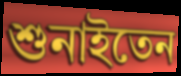
শুনাইতেন